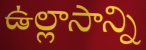
ఉల్లాసాన్ని